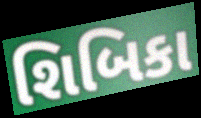
શિબિકા